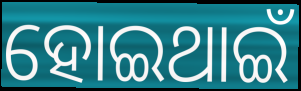
ହୋଇଥାଇଁ